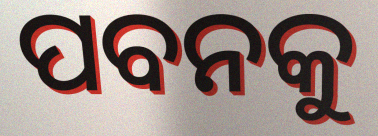
ପବନକୁ